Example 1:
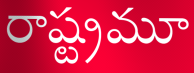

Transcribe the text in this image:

రాష్ట్రమూ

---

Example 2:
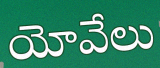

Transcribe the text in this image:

యోవేలు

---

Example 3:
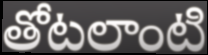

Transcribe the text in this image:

తోటలాంటి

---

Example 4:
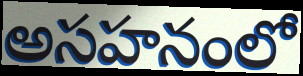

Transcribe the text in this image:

అసహనంలో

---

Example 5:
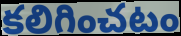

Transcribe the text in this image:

కలిగించటం